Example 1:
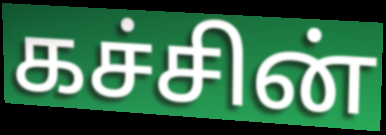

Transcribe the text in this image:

கச்சின்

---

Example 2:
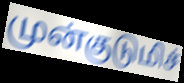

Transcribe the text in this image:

முன்குடுமிச்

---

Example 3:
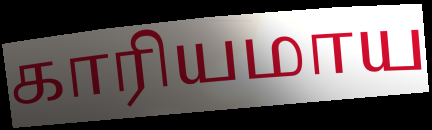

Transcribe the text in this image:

காரியமாய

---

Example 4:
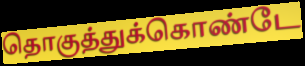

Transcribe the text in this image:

தொகுத்துக்கொண்டே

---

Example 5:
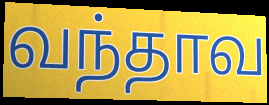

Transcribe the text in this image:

வந்தாவ